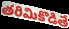
తరిమికొడితే